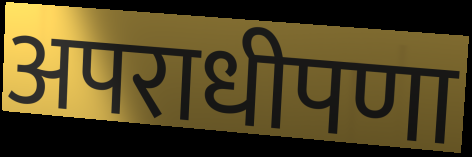
अपराधीपणा